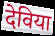
देविया